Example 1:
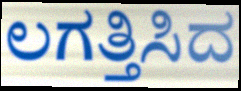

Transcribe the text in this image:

ಲಗತ್ತಿಸಿದ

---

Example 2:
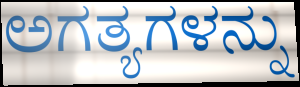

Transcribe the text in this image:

ಅಗತ್ಯಗಳನ್ನು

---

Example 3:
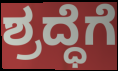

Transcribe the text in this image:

ಶ್ರದ್ಧೆಗೆ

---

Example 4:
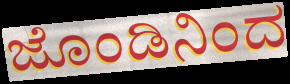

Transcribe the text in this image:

ಜೊಂಡಿನಿಂದ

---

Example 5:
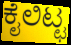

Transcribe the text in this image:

ಕೈಲಿಟ್ಟ